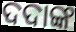
ଦଦାଙ୍କ